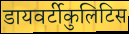
डायवर्टीकुलिटिस